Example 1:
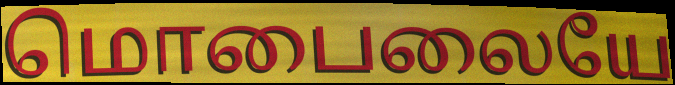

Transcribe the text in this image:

மொபைலையே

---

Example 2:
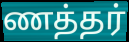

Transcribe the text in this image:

ணத்தர்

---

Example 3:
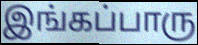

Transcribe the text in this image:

இங்கப்பாரு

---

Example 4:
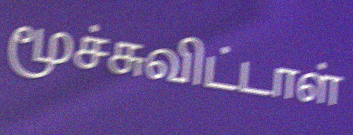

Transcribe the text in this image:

மூச்சுவிட்டாள்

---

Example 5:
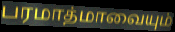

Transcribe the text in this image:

பரமாத்மாவையும்